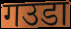
गउडा